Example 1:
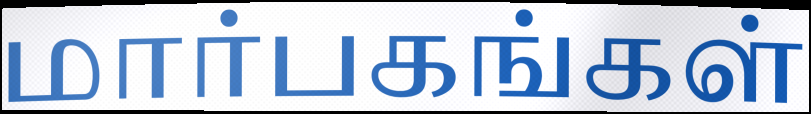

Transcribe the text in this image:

மார்பகங்கள்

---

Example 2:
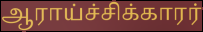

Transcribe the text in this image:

ஆராய்ச்சிக்காரர்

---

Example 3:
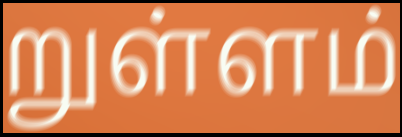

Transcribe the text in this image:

றுள்ளம்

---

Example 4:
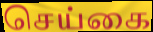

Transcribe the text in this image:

செய்கை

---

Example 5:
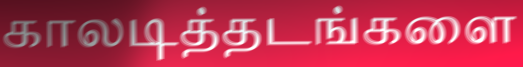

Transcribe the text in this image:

காலடித்தடங்களை